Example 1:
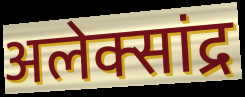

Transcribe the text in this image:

अलेक्सांद्र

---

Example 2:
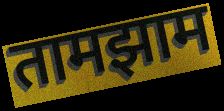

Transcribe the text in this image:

तामझाम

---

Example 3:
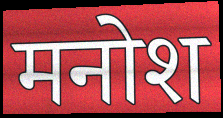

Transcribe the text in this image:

मनोश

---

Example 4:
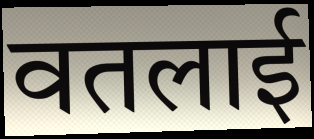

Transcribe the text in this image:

वतलाई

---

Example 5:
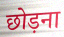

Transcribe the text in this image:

छोड़ना